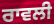
ਰਾਵਲੀ